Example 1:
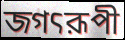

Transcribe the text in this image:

জগৎরূপী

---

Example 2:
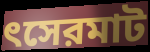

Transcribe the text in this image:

ৎসেরমাট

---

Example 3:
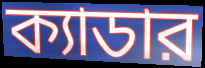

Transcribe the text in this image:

ক্যাডার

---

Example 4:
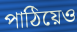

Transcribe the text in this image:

পাঠিয়েও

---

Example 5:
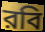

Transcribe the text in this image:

রবি